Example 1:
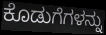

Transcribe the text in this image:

ಕೊಡುಗೆಗಳನ್ನು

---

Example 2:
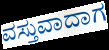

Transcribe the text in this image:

ವಸ್ತುವಾದಾಗ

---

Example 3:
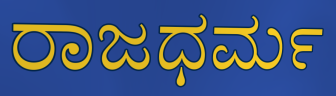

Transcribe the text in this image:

ರಾಜಧರ್ಮ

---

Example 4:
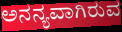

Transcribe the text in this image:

ಅನನ್ಯವಾಗಿರುವ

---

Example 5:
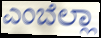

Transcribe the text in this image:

ಎಂಬೆಲ್ಲಾ